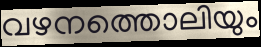
വഴനത്തൊലിയും